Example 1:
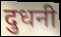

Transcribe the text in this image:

दुधनी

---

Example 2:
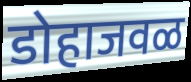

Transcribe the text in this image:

डोहाजवळ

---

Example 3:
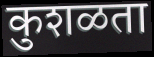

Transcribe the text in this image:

कुशळता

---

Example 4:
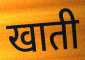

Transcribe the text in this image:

खाती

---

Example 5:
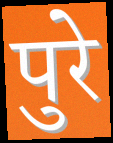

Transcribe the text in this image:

पुरे